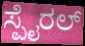
ಸ್ಪೈರಲ್